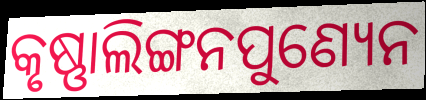
କୃଷ୍ଣାଲିଙ୍ଗନପୁଣ୍ଯେନ